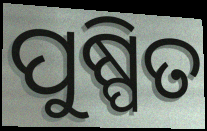
ପୁଷ୍ପିତ